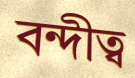
বন্দীত্ব